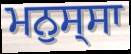
ਮਨੁਸ੍ਸਾ